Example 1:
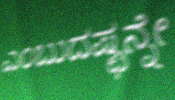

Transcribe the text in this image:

ಎಂಬುದಷ್ಟನ್ನೇ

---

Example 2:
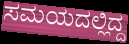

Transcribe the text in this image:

ಸಮಯದಲ್ಲಿದ್ದ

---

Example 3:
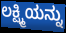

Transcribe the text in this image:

ಲಕ್ಷ್ಮಿಯನ್ನು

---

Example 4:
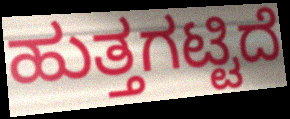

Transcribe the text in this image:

ಹುತ್ತಗಟ್ಟಿದೆ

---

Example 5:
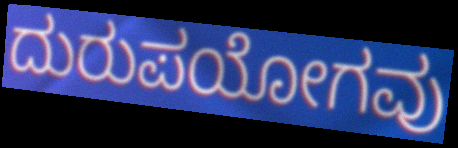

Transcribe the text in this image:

ದುರುಪಯೋಗವು